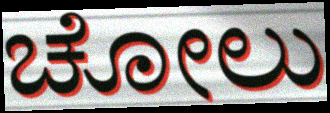
ಚೋಲು